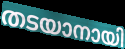
തടയാനായി